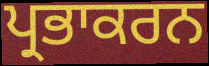
ਪ੍ਰਭਾਕਰਨ